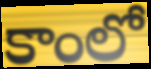
కాంలో